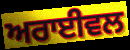
ਅਰਾਈਵਲ